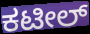
ಕಟೀಲ್